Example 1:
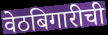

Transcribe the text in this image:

वेठबिगारीची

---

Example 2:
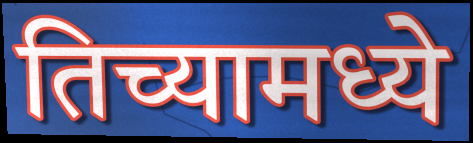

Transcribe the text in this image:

तिच्यामध्ये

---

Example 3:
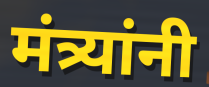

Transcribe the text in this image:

मंत्र्यांनी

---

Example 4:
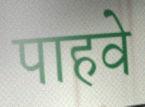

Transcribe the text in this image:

पाहवे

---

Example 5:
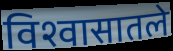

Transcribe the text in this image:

विश्वासातले